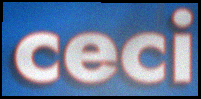
ceci